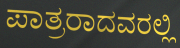
ಪಾತ್ರರಾದವರಲ್ಲಿ